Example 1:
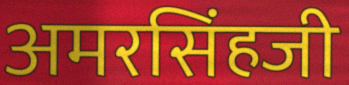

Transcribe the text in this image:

अमरसिंहजी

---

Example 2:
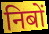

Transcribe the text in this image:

निबों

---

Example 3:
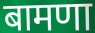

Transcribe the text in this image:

बामणा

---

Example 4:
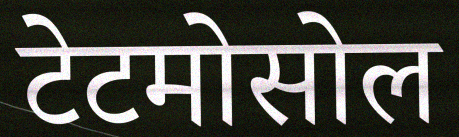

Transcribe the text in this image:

टेटमोसोल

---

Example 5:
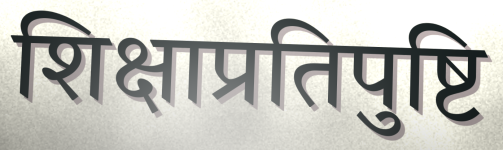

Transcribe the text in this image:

शिक्षाप्रतिपुष्टि